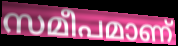
സമീപമാണ്